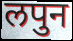
लपुन